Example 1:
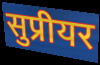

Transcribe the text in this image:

सुप्रीयर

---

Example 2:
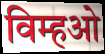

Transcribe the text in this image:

विम्हओ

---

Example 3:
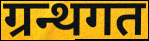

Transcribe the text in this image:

ग्रन्थगत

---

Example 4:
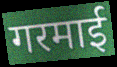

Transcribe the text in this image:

गरमाई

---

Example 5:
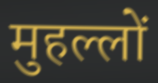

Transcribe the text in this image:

मुहल्लों